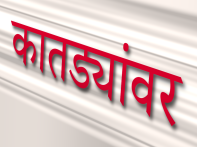
कातड्यांवर